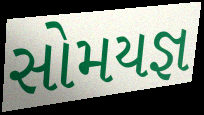
સોમયજ્ઞ